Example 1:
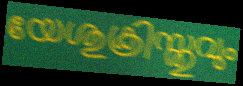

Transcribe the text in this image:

യേശുക്രിസ്തുവും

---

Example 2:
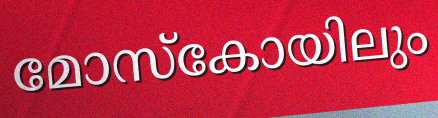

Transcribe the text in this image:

മോസ്കോയിലും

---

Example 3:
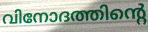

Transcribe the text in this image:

വിനോദത്തിന്റെ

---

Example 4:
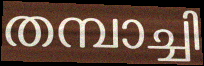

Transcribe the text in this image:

തമ്പാച്ചി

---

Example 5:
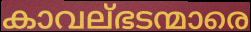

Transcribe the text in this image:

കാവല്ഭടന്മാരെ